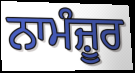
ਨਾਮੰਜ਼ੂਰ